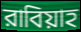
রাবিয়াহ